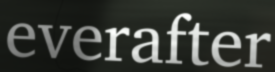
everafter